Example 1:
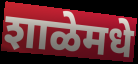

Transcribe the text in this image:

शाळेमधे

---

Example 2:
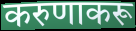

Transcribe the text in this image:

करुणाकरू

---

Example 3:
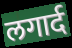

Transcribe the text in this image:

लगार्द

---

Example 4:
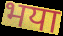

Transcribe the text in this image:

भया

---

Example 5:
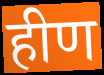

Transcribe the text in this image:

हीण